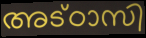
അട്ഠാസി